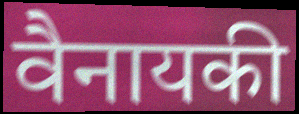
वैनायकी